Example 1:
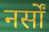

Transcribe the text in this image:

नर्सों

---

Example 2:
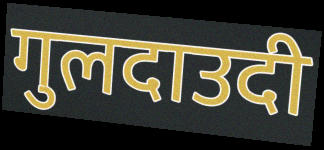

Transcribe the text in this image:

गुलदाउदी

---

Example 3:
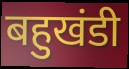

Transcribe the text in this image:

बहुखंडी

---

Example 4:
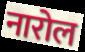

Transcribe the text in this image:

नारोल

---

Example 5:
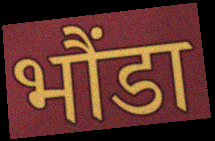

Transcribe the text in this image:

भौंडा